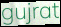
gujrat